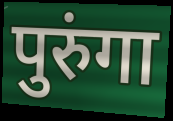
पुरुंगा